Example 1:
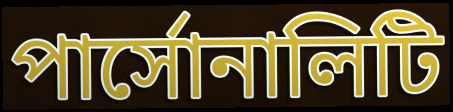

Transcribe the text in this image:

পার্সোনালিটি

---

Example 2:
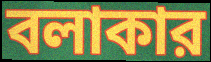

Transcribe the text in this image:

বলাকার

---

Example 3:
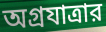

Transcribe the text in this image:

অগ্রযাত্রার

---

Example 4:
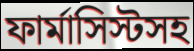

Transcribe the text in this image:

ফার্মাসিস্টসহ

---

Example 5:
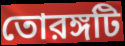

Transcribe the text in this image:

তোরঙ্গটি